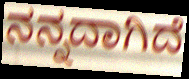
ನನ್ನದಾಗಿದೆ